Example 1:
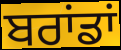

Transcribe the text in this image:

ਬਰਾਂਡਾਂ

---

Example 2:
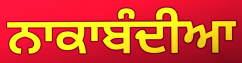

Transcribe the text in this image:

ਨਾਕਾਬੰਦੀਆ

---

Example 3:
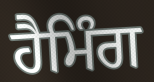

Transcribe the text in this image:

ਹੈਮਿੰਗ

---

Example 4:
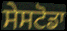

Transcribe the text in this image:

ਸੇਸਟੋਡਾ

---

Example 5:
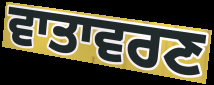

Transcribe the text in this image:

ਵਾਤਾਵਰਣ